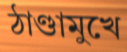
ঠাণ্ডামুখে